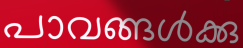
പാവങ്ങൾക്കു